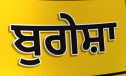
ਬੁਗੇਸ਼ਾ